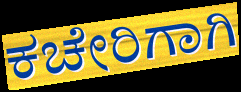
ಕಚೇರಿಗಾಗಿ